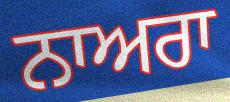
ਨਾਅਰਾ